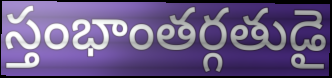
స్తంభాంతర్గతుడై